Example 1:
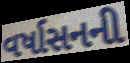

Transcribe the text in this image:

વર્ષાસનની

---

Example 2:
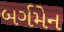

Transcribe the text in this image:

બર્ગમેન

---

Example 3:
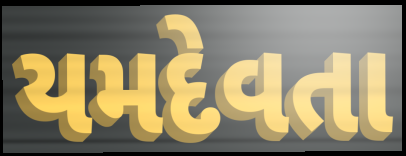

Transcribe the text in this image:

યમદેવતા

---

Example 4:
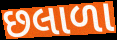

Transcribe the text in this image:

છલાળા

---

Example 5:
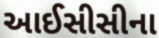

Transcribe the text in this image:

આઈસીસીના